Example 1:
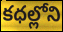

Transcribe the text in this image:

కధల్లోని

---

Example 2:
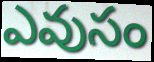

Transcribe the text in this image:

ఎవుసం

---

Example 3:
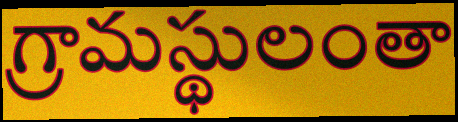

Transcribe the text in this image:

గ్రామస్థులంతా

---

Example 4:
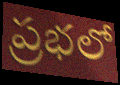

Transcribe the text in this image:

ప్రభలో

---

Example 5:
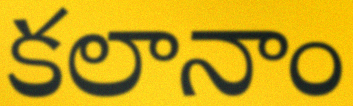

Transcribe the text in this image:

కలానాం